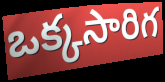
ఒక్కసారిగ